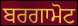
ਬਰਗਾਮੋਟ